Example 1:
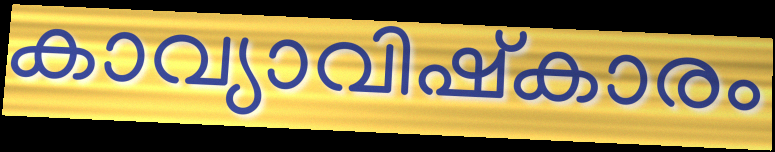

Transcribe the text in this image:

കാവ്യാവിഷ്കാരം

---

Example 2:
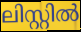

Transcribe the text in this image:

ലിസ്റ്റിൽ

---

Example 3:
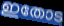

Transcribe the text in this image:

ഇതോട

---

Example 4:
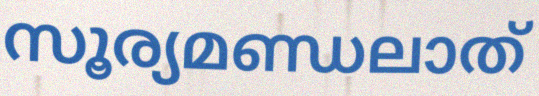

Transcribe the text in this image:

സൂര്യമണ്ഡലാത്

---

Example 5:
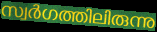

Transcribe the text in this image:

സ്വർഗത്തിലിരുന്നു